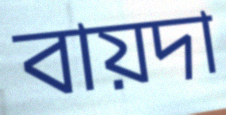
বায়দা